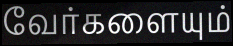
வேர்களையும்